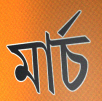
মাৰ্চ